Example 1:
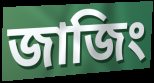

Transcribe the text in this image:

জাজিং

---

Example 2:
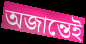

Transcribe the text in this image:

অজান্তেই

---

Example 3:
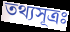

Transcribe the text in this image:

তথ্যসূত্রঃ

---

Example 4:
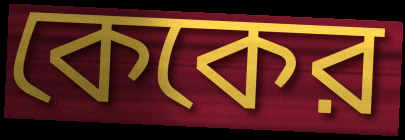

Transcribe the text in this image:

কেকের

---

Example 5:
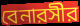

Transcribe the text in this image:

বেনারসীর